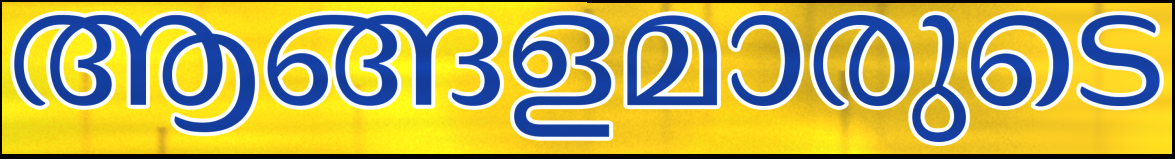
ആങ്ങളമാരുടെ